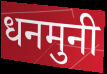
धनमुनी